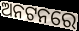
ଅନଟନରେ